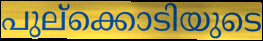
പുല്ക്കൊടിയുടെ